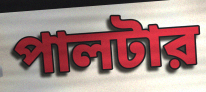
পালটার